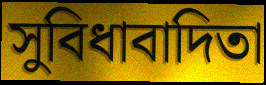
সুবিধাবাদিতা